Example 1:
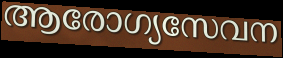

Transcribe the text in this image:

ആരോഗ്യസേവന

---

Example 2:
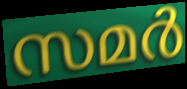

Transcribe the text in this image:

സമർ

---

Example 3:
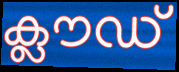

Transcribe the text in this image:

ക്ലൗഡ്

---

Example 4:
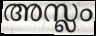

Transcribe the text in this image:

അസ്ലം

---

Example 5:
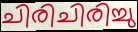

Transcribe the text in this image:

ചിരിചിരിച്ചു